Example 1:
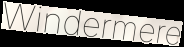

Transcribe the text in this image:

Windermere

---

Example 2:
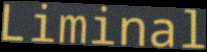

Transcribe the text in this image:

Liminal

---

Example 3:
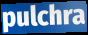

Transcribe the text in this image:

pulchra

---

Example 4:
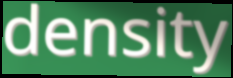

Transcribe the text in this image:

density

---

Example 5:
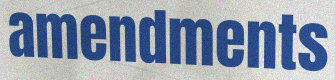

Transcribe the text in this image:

amendments